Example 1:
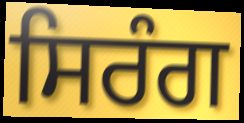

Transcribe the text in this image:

ਸਿਰੰਗ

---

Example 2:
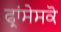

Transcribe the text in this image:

ਫ੍ਰਾਂਸੇਸਕੋ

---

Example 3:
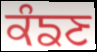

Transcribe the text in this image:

ਕੰਙਣ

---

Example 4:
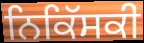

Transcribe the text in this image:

ਨਿਕਿੱਸਕੀ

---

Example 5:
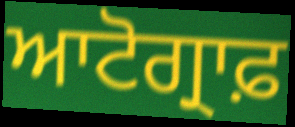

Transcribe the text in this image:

ਆਟੋਗ੍ਰਾਫ਼